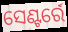
ସେଣ୍ଟର୍ରେ